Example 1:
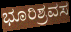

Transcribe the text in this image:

ಭೂರಿಶ್ರವಸ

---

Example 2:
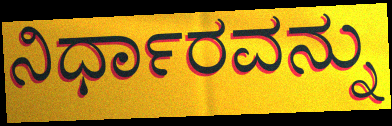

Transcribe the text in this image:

ನಿರ್ಧಾರವನ್ನು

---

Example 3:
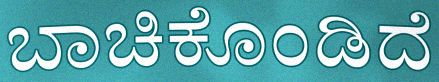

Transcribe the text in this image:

ಬಾಚಿಕೊಂಡಿದೆ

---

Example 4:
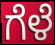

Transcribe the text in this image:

ಗೆಳೆ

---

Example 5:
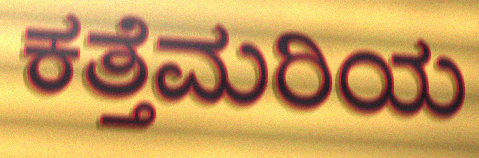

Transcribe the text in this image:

ಕತ್ತೆಮರಿಯ